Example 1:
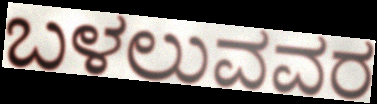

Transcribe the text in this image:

ಬಳಲುವವರ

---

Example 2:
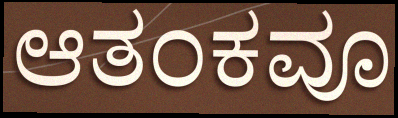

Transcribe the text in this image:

ಆತಂಕವೂ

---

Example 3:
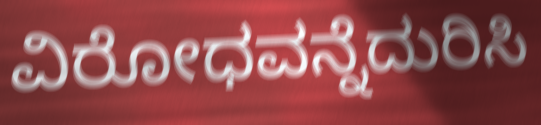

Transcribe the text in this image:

ವಿರೋಧವನ್ನೆದುರಿಸಿ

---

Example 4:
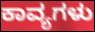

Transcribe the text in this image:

ಕಾವ್ಯಗಳು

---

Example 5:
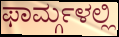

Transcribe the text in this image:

ಫಾರ್ಮ್ಗಳಲ್ಲಿ